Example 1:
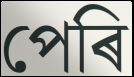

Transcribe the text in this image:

পেৰি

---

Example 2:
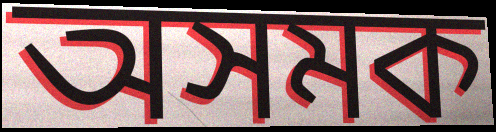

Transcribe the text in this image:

অসমক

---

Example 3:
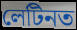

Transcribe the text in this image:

লেটিনত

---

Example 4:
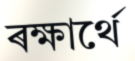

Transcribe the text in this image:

ৰক্ষাৰ্থে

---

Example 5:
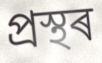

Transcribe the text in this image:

প্ৰস্থৰ